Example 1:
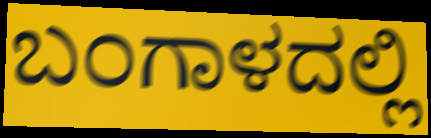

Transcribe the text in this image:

ಬಂಗಾಳದಲ್ಲಿ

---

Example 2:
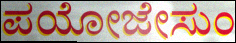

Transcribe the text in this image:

ಪಯೋಜೇಸುಂ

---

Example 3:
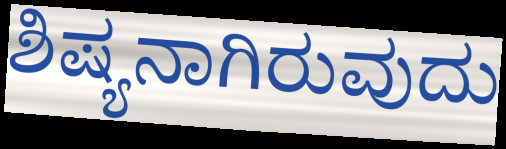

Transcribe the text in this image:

ಶಿಷ್ಯನಾಗಿರುವುದು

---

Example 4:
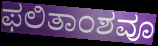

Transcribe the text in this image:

ಫಲಿತಾಂಶವೂ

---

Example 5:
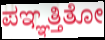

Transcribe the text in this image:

ಪಞ್ಞತ್ತಿತೋ